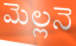
మెల్లనె